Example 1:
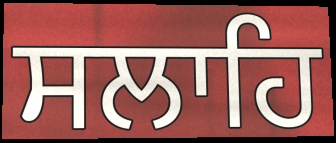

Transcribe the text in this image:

ਸਲਾਹਿ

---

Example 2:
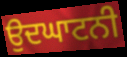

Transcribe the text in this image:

ਉਦਘਾਟਨੀ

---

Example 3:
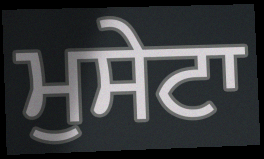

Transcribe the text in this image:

ਮੁਸੇਟਾ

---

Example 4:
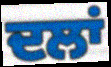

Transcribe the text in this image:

ਦਲਾਂ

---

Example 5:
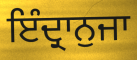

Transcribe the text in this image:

ਇੰਦ੍ਰਾਨੁਜਾ